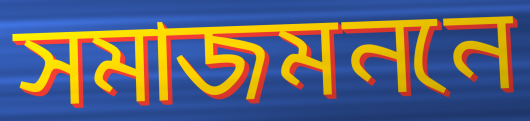
সমাজমননে